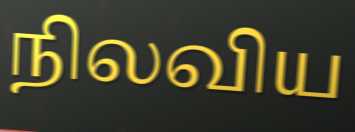
நிலவிய